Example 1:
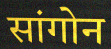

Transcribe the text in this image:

सांगोन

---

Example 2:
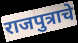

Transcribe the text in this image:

राजपुत्राचे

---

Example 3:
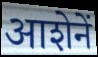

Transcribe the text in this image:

आशेनें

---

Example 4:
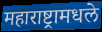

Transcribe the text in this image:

महाराष्ट्रामधले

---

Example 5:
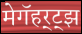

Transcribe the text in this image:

मेगॅहर्ट्‌झ